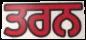
ਤਰਨ